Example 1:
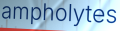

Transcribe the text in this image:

ampholytes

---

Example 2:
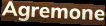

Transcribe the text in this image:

Agremone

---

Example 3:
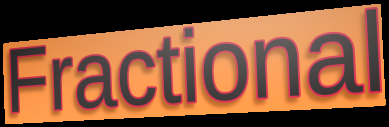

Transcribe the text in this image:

Fractional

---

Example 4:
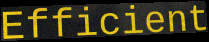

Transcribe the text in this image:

Efficient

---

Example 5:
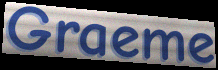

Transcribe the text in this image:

Graeme